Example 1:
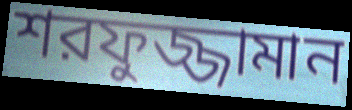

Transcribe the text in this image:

শরফুজ্জামান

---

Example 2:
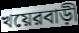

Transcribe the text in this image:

খয়েরবাড়ী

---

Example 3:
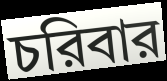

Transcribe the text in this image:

চরিবার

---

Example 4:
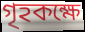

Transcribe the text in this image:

গৃহকক্ষে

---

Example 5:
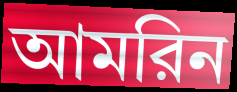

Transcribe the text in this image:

আমরিন